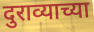
दुराव्याच्या